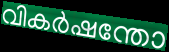
വികർഷന്തോ